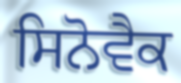
ਸਿਨੋਵੈਕ